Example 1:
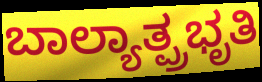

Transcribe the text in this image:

ಬಾಲ್ಯಾತ್ಪ್ರಭೃತಿ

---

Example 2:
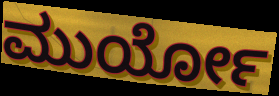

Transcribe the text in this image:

ಮುರ್ಯೋ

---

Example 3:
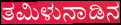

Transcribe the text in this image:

ತಮಿಳುನಾಡಿನ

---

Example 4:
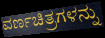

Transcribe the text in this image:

ವರ್ಣಚಿತ್ರಗಳನ್ನು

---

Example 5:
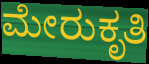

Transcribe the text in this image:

ಮೇರುಕೃತಿ